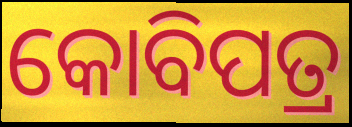
କୋବିପତ୍ର